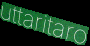
uttaritaro